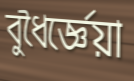
বুধৈর্জ্ঞেয়া